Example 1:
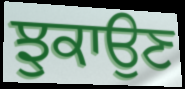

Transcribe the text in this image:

ਝੁਕਾਉਣ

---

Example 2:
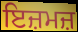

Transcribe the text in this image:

ਇਜ਼ਮਜ਼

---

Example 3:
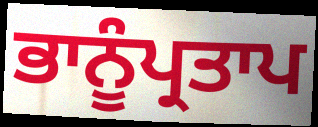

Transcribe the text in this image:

ਭਾਨੂੰਪ੍ਰਤਾਪ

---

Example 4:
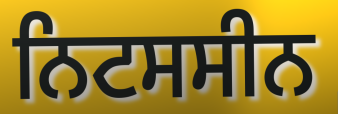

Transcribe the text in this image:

ਨਿਟਸਸੀਨ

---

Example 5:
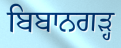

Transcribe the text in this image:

ਬਿਬਾਨਗੜ੍ਹ